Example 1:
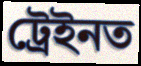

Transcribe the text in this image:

ট্ৰেইনত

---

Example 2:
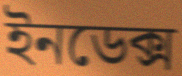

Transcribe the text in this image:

ইনডেক্স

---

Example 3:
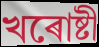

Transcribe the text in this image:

খৰোষ্টী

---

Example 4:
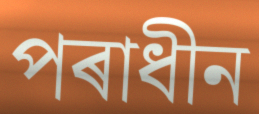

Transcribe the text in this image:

পৰাধীন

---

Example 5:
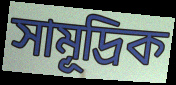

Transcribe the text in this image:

সামূদ্ৰিক